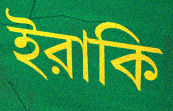
ইরাকি